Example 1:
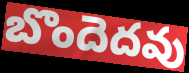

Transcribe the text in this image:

బొందెదవు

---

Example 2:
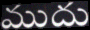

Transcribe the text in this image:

ముదు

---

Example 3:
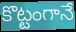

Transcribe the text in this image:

కొట్టంగానే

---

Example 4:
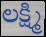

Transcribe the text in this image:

లక్ష్మి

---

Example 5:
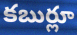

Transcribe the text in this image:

కబుర్లూ